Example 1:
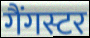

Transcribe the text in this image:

गैंगस्टर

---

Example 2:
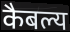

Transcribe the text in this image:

कैबल्य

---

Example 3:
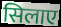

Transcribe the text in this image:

सिलाए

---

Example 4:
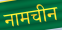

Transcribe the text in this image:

नामचीन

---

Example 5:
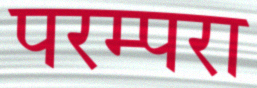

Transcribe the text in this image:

परम्परा